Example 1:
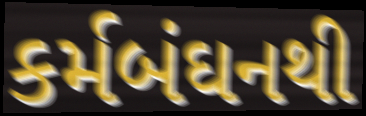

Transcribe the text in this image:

કર્મબંઘનથી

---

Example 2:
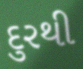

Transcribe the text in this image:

દુરથી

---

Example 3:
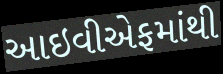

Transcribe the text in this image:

આઇવીએફમાંથી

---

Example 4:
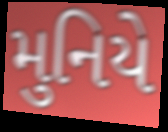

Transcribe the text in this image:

મુનિયે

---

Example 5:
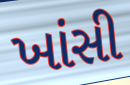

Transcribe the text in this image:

ખાંસી